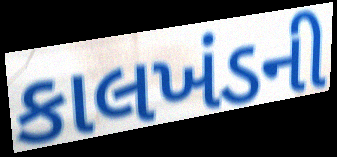
કાલખંડની